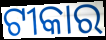
ଟୀକାର